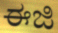
ಈಜಿ